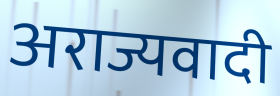
अराज्यवादी